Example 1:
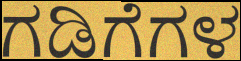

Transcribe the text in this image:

ಗಡಿಗೆಗಳ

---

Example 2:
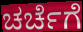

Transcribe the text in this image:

ಚರ್ಚೆಗೆ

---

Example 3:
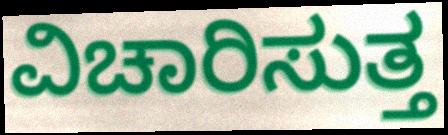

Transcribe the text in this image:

ವಿಚಾರಿಸುತ್ತ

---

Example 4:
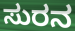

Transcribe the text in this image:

ಸುರನ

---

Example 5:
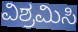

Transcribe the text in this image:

ವಿಶ್ರಮಿಸಿ